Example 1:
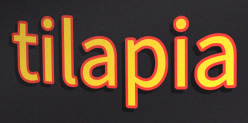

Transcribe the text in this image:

tilapia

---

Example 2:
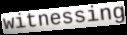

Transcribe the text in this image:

witnessing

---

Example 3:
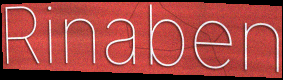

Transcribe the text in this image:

Rinaben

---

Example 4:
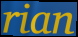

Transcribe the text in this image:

rian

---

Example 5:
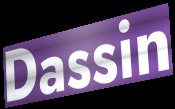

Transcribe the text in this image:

Dassin